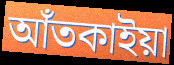
আঁতকাইয়া